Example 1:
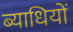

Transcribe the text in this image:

ब्याधियों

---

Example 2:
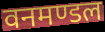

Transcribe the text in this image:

वनमण्डल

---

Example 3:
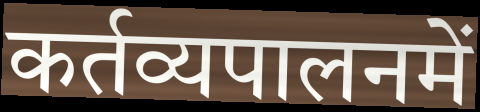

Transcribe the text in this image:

कर्तव्यपालनमें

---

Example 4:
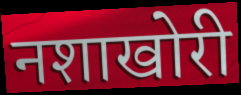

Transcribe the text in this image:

नशाखोरी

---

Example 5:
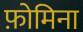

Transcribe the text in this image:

फ़ोमिना